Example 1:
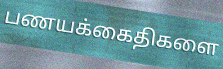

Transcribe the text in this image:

பணயக்கைதிகளை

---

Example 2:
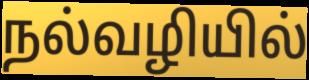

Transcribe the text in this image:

நல்வழியில்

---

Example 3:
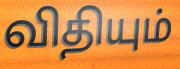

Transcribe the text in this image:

விதியும்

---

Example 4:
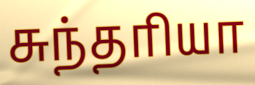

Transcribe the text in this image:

சுந்தரியா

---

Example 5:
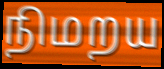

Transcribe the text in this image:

நிமறய